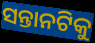
ସନ୍ତାନଟିକୁ